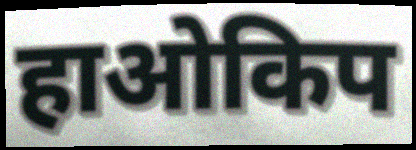
हाओकिप